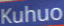
Kuhuo